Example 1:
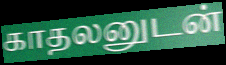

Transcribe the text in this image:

காதலனுடன்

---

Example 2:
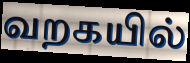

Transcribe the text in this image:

வறகயில்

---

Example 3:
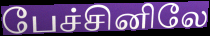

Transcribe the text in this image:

பேச்சினிலே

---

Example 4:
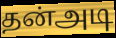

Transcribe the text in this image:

தன்அடி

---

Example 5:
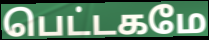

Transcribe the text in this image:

பெட்டகமே